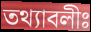
তথ্যাবলীঃ